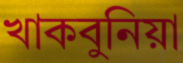
খাকবুনিয়া